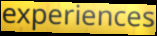
experiences